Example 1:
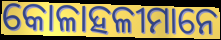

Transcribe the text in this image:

କୋଳାହଳୀମାନେ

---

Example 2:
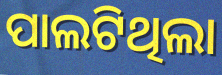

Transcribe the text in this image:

ପାଲଟିଥିଲା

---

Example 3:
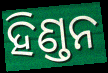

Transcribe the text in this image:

ହିଣ୍ଡନ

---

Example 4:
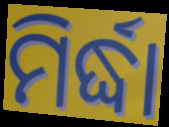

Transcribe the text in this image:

ମିର୍ଦ୍ଧା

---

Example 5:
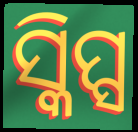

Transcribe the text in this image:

ସ୍କିପ୍ସ